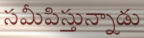
సమీపిస్తున్నాడు